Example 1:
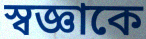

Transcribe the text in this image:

স্বজ্ঞাকে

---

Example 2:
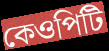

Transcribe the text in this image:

কেওপিটি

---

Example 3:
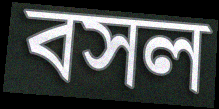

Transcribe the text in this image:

বসল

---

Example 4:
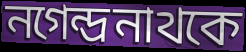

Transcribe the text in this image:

নগেন্দ্রনাথকে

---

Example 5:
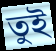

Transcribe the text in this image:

তুই